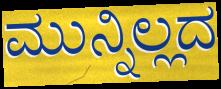
ಮುನ್ನಿಲ್ಲದ